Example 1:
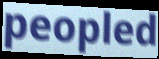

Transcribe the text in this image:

peopled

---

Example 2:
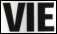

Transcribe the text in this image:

VIE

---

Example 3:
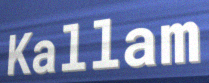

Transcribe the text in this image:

Kallam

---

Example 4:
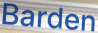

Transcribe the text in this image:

Barden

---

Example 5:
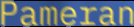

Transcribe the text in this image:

Pameran